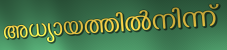
അധ്യായത്തിൽനിന്ന്